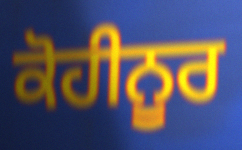
ਕੋਹੀਨੂਰ